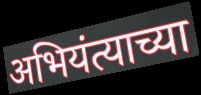
अभियंत्याच्या